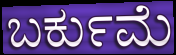
ಬರ್ಕುಮೆ